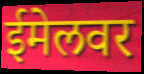
ईमेलवर